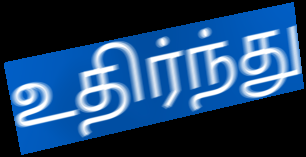
உதிர்ந்து